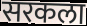
सरकला